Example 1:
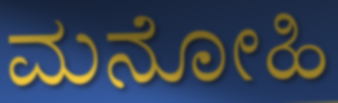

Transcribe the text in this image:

ಮನೋಹಿ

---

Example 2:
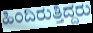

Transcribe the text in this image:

ಹಿಂದಿರುತ್ತಿದ್ದರು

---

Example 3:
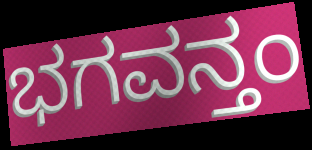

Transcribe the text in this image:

ಭಗವನ್ತಂ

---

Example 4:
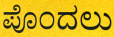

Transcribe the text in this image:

ಪೊಂದಲು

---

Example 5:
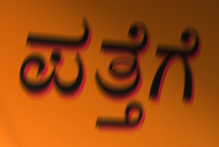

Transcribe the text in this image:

ಪತ್ತೆಗೆ